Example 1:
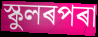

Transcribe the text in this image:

স্কুলৰপৰা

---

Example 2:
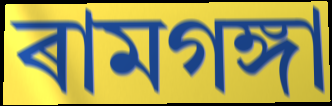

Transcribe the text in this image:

ৰামগঙ্গা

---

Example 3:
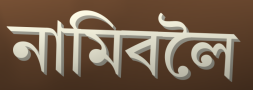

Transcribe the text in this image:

নামিবলৈ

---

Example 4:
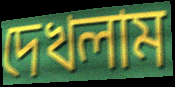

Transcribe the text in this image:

দেখলাম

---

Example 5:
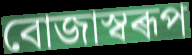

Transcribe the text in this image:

বোজাস্বৰূপ